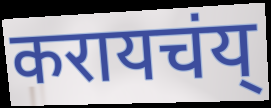
करायचंय्